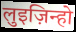
लुइज़िन्हो